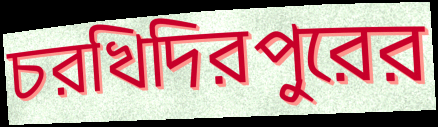
চরখিদিরপুরের